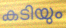
കടിയും